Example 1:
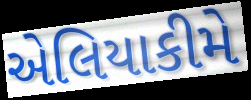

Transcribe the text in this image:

એલિયાકીમે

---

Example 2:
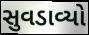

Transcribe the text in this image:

સુવડાવ્યો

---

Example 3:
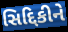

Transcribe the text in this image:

સિદ્દિકીને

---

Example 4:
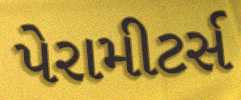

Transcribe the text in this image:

પેરામીટર્સ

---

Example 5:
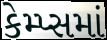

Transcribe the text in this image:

કેમ્પ્સમાં